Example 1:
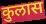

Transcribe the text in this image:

कुलास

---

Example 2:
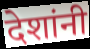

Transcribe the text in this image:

देशांनी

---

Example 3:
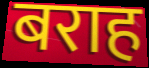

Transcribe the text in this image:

बराह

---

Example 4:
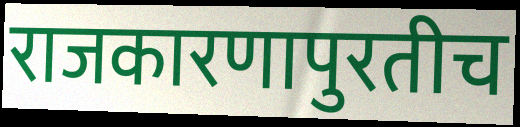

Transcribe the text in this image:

राजकारणापुरतीच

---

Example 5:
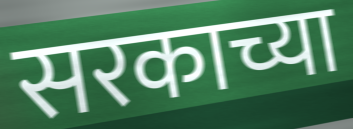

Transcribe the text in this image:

सरकाच्या